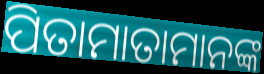
ପିତାମାତାମାନଙ୍କ